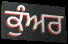
ਕੁੰਅਰ